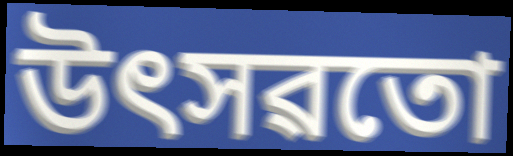
উৎসৱতো